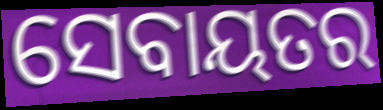
ସେବାୟତର